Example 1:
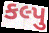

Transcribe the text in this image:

કલ્પુ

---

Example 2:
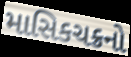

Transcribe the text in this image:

માસિકચક્રનો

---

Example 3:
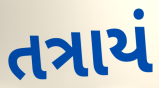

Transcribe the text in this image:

તત્રાયં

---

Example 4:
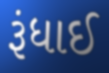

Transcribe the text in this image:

રૂંધાઈ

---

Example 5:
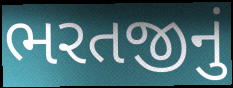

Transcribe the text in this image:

ભરતજીનું